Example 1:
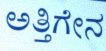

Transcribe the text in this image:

ಅತ್ತಿಗೇನ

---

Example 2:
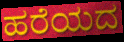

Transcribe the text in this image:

ಹರೆಯದ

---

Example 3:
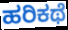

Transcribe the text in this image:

ಹರಿಕಥೆ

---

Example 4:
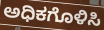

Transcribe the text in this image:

ಅಧಿಕಗೊಳಿಸಿ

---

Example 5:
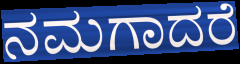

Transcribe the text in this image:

ನಮಗಾದರೆ